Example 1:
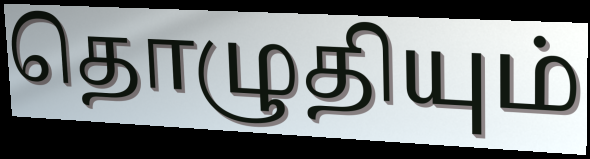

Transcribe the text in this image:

தொழுதியும்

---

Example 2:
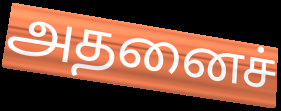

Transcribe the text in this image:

அதனைச்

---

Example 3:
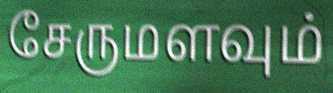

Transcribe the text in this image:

சேருமளவும்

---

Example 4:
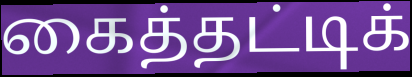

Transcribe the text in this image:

கைத்தட்டிக்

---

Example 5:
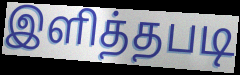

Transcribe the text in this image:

இளித்தபடி